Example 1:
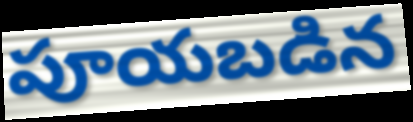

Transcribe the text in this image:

పూయబడిన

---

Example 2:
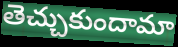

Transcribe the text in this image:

తెచ్చుకుందామా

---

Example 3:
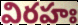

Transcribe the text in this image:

విరహః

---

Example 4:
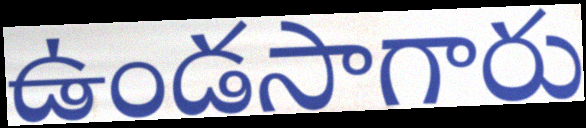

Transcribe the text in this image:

ఉండసాగారు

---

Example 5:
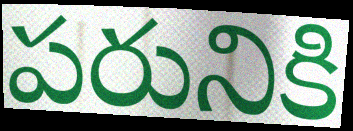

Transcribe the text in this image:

పరునికి